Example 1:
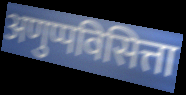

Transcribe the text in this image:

अणुप्पविसित्ता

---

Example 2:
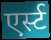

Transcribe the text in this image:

एर्स्ट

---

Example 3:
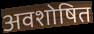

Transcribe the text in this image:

अवशोषित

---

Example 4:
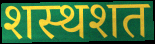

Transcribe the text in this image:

शस्थशत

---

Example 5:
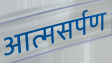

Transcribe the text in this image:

आत्मसर्पण